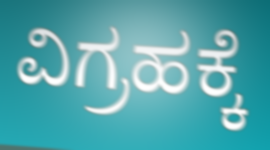
ವಿಗ್ರಹಕ್ಕೆ